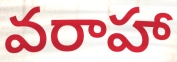
వరాహా